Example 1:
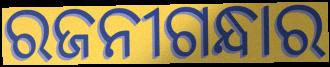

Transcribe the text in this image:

ରଜନୀଗନ୍ଧାର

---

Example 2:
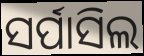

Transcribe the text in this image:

ସର୍ପାସିଲ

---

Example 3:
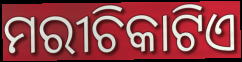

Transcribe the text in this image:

ମରୀଚିକାଟିଏ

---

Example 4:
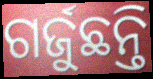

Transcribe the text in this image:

ଗର୍ଜୁଛନ୍ତି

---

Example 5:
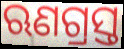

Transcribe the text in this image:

ଋଣଗ୍ରସ୍ତ